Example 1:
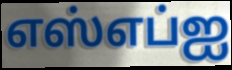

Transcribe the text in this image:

எஸ்எப்ஐ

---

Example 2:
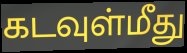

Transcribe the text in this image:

கடவுள்மீது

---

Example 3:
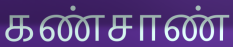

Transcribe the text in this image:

கண்சாண்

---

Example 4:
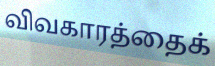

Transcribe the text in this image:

விவகாரத்தைக்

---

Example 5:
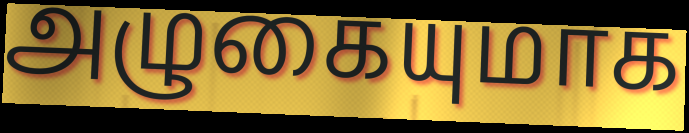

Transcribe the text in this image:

அழுகையுமாக